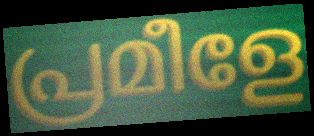
പ്രമീളേ